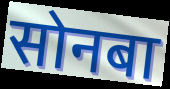
सोनबा